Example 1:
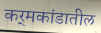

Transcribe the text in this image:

कर्मकांडातील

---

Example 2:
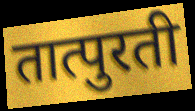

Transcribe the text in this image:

तात्पुरती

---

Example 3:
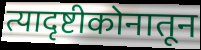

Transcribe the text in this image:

त्यादृष्टीकोनातून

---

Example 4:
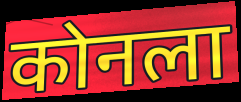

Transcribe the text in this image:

कोनला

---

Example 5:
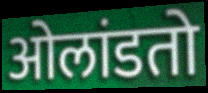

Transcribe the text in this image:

ओलांडतो